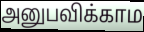
அனுபவிக்காம